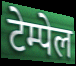
टेम्पेल